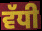
ਵੱਧੀ